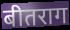
बीतराग